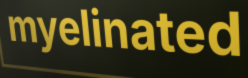
myelinated